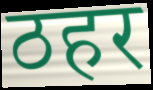
ठहर